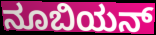
ನೂಬಿಯನ್